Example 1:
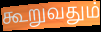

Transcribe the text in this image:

கூறுவதும்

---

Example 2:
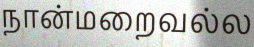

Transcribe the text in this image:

நான்மறைவல்ல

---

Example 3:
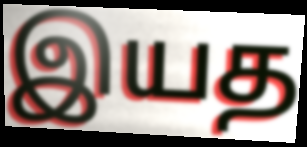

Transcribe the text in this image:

இயத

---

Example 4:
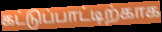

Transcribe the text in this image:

கட்டுப்பாட்டிற்காக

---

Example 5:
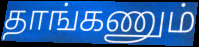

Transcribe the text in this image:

தாங்கணும்